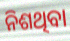
ନିଶଥିବା